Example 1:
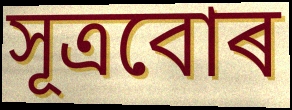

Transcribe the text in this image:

সূত্ৰবোৰ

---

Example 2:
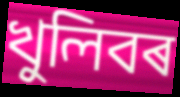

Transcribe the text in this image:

খুলিবৰ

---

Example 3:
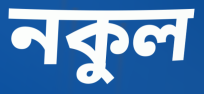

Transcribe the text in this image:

নকুল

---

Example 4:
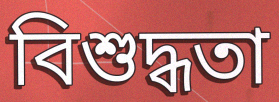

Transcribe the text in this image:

বিশুদ্ধতা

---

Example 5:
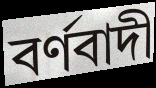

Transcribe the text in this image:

বৰ্ণবাদী